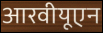
आरवीयूएन